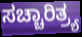
ಸಚ್ಚಾರಿತ್ರ್ಯ